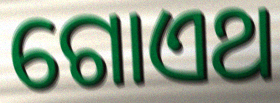
ଗୋଏଥ